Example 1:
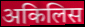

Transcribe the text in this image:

अकिलिस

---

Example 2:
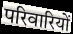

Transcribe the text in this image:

परिवारियों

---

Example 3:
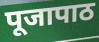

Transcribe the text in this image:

पूजापाठ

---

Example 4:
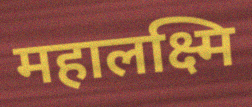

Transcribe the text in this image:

महालक्ष्मि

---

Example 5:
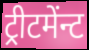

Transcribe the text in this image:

ट्रीटमेंन्ट